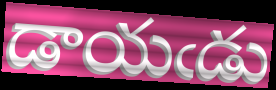
డాయఁడు